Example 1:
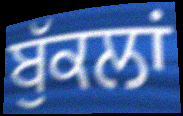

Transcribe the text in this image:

ਬੁੱਕਲਾਂ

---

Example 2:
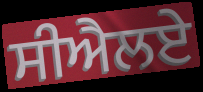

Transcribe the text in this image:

ਸੀਐਲਏ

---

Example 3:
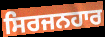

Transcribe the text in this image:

ਸਿਰਜਨਹਾਰ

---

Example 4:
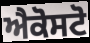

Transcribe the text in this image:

ਐਕੋਸਟੋ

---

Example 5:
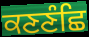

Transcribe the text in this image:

ਕਣਣੰਛਿ